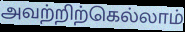
அவற்றிற்கெல்லாம்